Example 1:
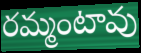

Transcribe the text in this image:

రమ్మంటావు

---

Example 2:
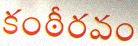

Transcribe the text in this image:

కంఠీరవం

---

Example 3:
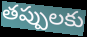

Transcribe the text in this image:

తప్పులకు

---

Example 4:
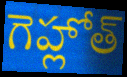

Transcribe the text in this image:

గెహ్లోత్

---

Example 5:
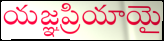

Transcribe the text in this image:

యజ్ఞప్రియాయై